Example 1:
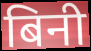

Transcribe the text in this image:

बिनी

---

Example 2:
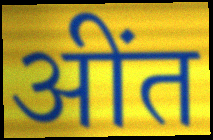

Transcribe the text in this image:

अींत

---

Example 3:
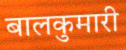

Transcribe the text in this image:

बालकुमारी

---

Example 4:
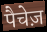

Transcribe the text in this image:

पैचेज़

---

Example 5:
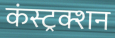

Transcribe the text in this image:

कंस्ट्रक्शन